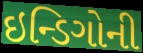
ઇન્ડિગોની